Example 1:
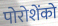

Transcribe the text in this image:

पोरोशेंको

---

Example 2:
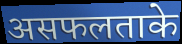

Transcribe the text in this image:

असफलताके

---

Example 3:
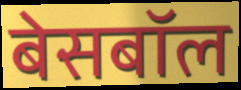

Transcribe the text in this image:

बेसबॉल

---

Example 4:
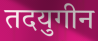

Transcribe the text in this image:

तदयुगीन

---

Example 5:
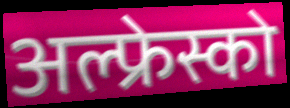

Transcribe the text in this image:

अल्फ्रेस्को